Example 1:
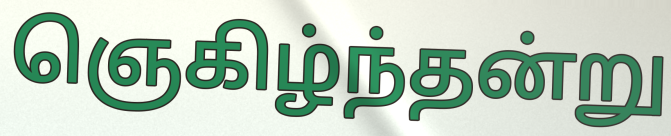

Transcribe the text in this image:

ஞெகிழ்ந்தன்று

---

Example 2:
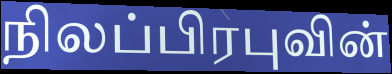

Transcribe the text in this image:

நிலப்பிரபுவின்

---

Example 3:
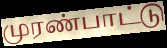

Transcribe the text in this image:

முரண்பாட்டு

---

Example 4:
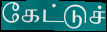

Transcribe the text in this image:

கேட்டுச்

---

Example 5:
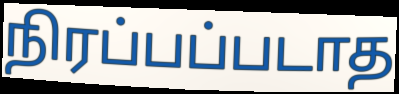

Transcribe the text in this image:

நிரப்பப்படாத